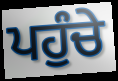
ਪਹੁੰਚੇ